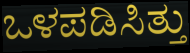
ಒಳಪಡಿಸಿತ್ತು